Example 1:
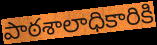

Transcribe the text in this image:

పాఠశాలాధికారికి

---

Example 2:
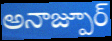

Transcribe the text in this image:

అనాజ్పూర్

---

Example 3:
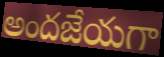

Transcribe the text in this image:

అందజేయగా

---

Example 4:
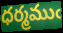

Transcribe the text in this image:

ధర్మముఁ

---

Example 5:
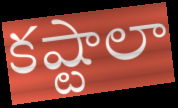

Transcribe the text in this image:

కష్టాలా